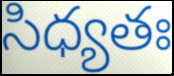
సిధ్యతః